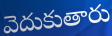
వెదుకుతారు